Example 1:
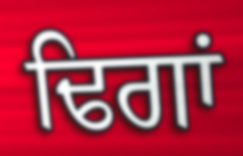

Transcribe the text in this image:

ਢਿਗਾਂ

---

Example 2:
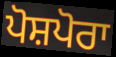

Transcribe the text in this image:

ਪੋਸ਼ਪੋਰਾ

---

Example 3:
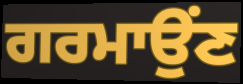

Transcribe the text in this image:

ਗਰਮਾਉਂਣ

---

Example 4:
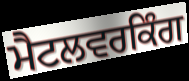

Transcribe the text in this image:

ਮੈਟਲਵਰਕਿੰਗ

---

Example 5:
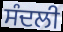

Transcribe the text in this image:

ਸੰਦਲੀ